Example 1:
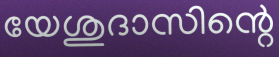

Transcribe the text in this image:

യേശുദാസിന്റെ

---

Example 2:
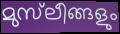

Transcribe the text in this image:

മുസ്‌ലീങ്ങളും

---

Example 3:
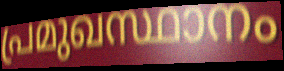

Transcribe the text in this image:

പ്രമുഖസ്ഥാനം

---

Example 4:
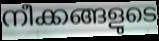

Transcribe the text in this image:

നീക്കങ്ങളുടെ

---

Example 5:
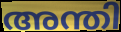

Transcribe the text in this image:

അന്തി